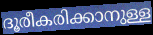
ദൂരീകരിക്കാനുള്ള